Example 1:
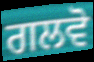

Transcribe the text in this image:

ਗਲਵੋ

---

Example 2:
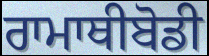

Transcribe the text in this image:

ਰਾਮਾਥੀਬੋਡੀ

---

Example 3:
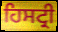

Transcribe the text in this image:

ਹਿਸਟ੍ਰੀ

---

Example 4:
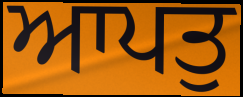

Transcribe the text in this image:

ਆਪਤੁ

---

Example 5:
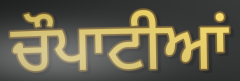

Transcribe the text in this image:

ਚੌਪਾਟੀਆਂ